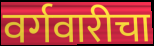
वर्गवारीचा